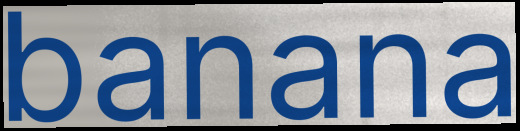
banana